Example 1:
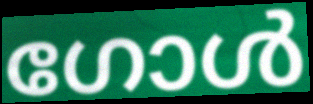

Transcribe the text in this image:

ഗോൾ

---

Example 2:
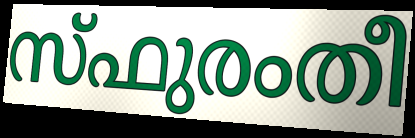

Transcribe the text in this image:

സ്ഫുരംതീ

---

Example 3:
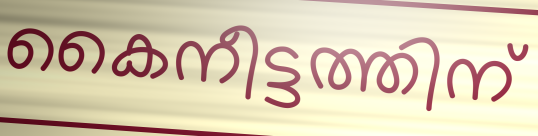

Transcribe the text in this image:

കൈനീട്ടത്തിന്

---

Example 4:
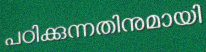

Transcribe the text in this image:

പഠിക്കുന്നതിനുമായി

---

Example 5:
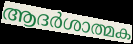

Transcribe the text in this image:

ആദർശാത്മക